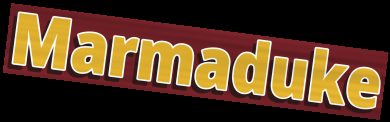
Marmaduke